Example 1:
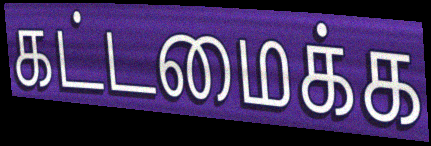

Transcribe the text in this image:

கட்டமைக்க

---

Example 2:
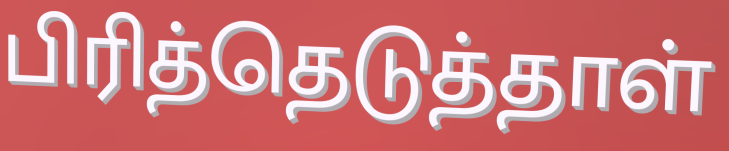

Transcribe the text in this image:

பிரித்தெடுத்தாள்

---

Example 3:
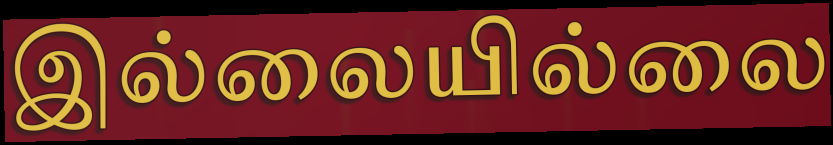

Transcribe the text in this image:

இல்லையில்லை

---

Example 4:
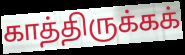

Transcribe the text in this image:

காத்திருக்கக்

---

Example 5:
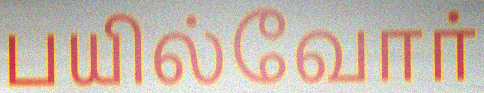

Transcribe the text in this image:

பயில்வோர்